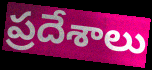
ప్రదేశాలు